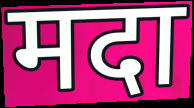
मदा